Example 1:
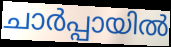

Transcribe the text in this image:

ചാർപ്പായിൽ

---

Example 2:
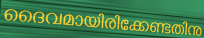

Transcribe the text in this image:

ദൈവമായിരിക്കേണ്ടതിനു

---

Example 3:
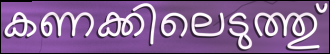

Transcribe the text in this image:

കണക്കിലെടുത്തു്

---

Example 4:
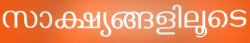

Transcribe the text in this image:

സാക്ഷ്യങ്ങളിലൂടെ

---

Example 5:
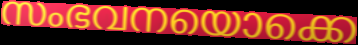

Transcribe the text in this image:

സംഭവനയൊക്കെ